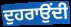
ਦੁਹਰਾਉਂਦੀ